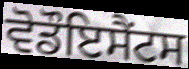
ਵੋਡੌਇਸੈਂਟਸ